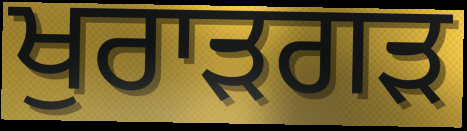
ਖੁਰਾੜਗੜ